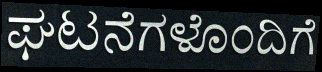
ಘಟನೆಗಳೊಂದಿಗೆ